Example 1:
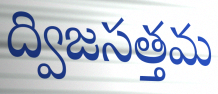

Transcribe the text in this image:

ద్విజసత్తమ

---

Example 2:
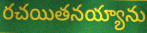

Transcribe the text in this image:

రచయితనయ్యాను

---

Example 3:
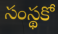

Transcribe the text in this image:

సంస్థకో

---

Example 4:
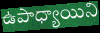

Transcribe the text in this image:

ఉపాధ్యాయిని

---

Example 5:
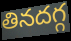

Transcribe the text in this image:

తినదగ్గ